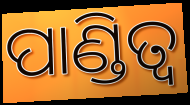
ପାଣ୍ଡିତ୍ୱ